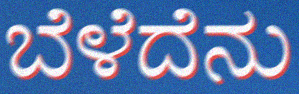
ಬೆಳೆದೆನು